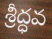
శ్రీద్ధవ